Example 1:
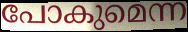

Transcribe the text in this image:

പോകുമെന്ന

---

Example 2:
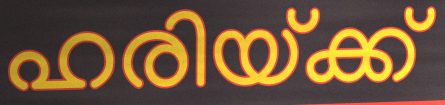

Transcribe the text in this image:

ഹരിയ്‌ക്ക്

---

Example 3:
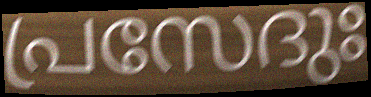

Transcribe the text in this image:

പ്രസേദുഃ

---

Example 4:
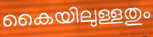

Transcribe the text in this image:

കൈയിലുള്ളതും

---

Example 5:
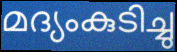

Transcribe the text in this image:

മദ്യംകുടിച്ചു